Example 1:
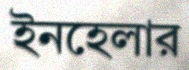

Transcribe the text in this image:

ইনহেলার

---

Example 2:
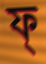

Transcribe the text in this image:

ফ্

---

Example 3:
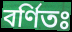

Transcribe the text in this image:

বর্ণিতঃ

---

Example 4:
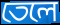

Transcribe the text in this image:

তেলে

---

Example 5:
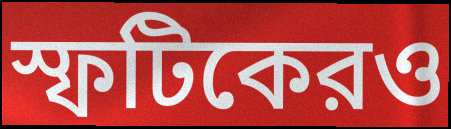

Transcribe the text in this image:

স্ফটিকেরও